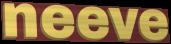
neeve